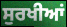
ਸੁਰਖੀਆਂ